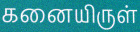
கனையிருள்